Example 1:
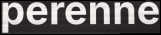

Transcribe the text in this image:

perenne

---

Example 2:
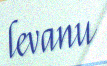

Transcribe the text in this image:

levanu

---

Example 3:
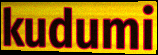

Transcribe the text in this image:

kudumi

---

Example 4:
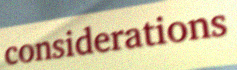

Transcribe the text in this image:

considerations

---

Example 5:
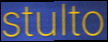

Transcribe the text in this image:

stulto